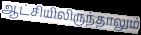
ஆட்சியிலிருந்தாலும்